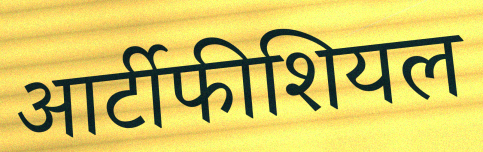
आर्टीफीशियल